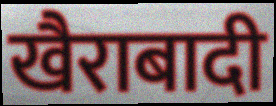
खैराबादी